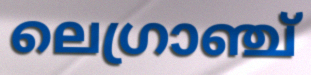
ലെഗ്രാഞ്ച്